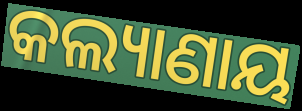
କଲ୍ୟାଣାୟ